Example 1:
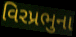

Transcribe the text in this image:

વિરપ્રભુના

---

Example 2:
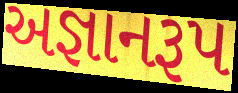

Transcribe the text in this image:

અજ્ઞાનરૂપ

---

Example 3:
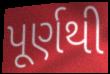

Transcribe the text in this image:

પૂર્ણથી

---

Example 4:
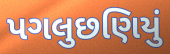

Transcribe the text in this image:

પગલુછણિયું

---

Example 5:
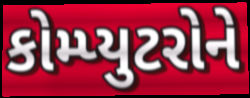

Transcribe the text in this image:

કોમ્પ્યુટરોને